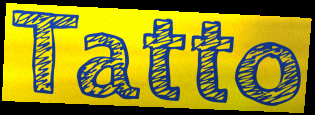
Tatto